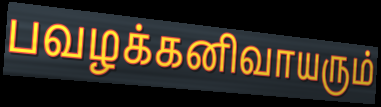
பவழக்கனிவாயரும்